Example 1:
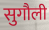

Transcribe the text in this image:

सुगौली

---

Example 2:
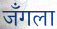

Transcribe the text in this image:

जँगला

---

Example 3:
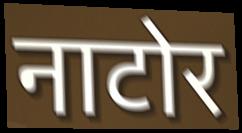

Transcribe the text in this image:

नाटोर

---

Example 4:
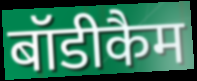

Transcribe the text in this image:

बॉडीकैम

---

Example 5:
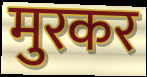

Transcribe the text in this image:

मुरकर